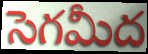
సెగమీద